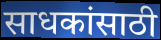
साधकांसाठी